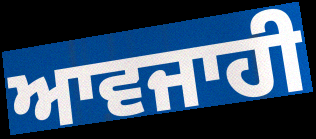
ਆਵਜਾਹੀ